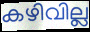
കഴിവില്ല